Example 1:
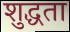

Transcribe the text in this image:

शुद्धता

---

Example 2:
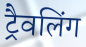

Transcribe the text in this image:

ट्रैवलिंग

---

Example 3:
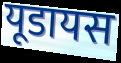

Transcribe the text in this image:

यूडायस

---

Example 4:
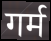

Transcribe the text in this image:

गर्म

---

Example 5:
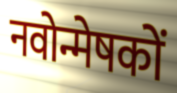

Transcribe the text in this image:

नवोन्मेषकों